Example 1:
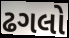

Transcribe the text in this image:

ઢગલો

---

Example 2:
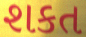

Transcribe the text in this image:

શકત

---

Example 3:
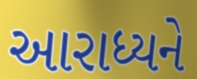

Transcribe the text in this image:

આરાધ્યને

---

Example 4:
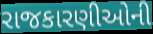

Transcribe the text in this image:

રાજકારણીઓની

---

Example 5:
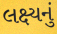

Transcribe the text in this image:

લક્ષ્યનું